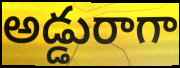
అడ్డురాగా